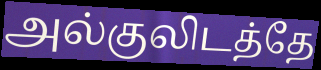
அல்குலிடத்தே